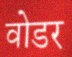
वोडर